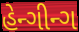
હેન્ગીન્ગ